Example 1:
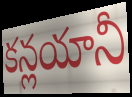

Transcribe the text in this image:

కన్లయానీ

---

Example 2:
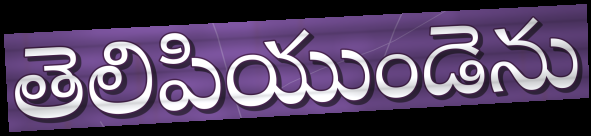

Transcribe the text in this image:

తెలిపియుండెను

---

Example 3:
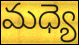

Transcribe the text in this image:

మధ్యె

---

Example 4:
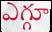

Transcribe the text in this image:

ఎగ్గూ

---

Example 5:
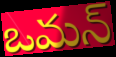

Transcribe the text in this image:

ఒమన్